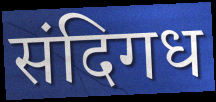
संदिगध